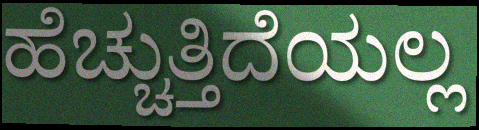
ಹೆಚ್ಚುತ್ತಿದೆಯಲ್ಲ